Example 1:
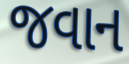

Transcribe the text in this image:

જવાન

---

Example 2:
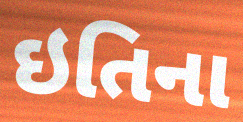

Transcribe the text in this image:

ઇતિના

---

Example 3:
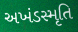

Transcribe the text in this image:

અખંડસ્મૃતિ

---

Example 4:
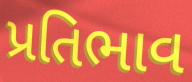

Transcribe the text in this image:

પ્રતિભાવ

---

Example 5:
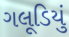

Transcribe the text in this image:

ગલૂડિયું